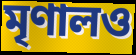
মৃণালও